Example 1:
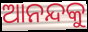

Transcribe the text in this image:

ଆନନ୍ଦକୁ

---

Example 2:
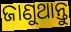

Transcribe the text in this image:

ଜାଣୁଥାନ୍ତୁ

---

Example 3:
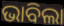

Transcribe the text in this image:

ଭାବିଲା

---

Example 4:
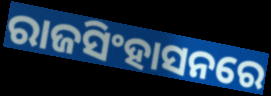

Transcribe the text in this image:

ରାଜସିଂହାସନରେ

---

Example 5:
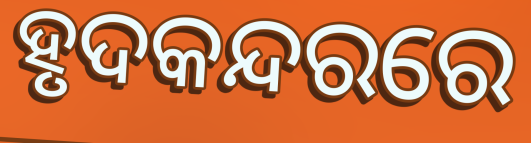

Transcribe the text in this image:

ହୃଦକନ୍ଦରରେ